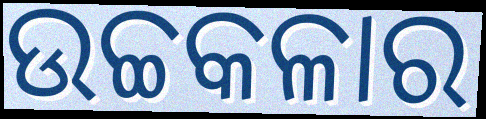
ଉଚ୍ଚକଳାର